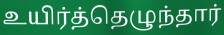
உயிர்த்தெழுந்தார்